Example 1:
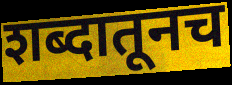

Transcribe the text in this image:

शब्दातूनच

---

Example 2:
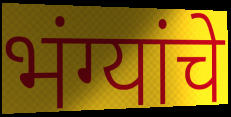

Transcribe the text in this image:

भंग्यांचे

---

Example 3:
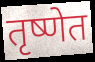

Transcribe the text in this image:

तृष्णेत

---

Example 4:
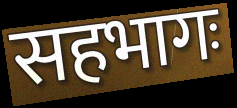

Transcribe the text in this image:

सहभागः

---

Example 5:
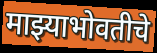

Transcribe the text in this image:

माझ्याभोवतीचे